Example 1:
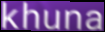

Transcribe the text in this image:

khuna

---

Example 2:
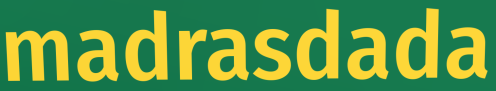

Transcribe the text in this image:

madrasdada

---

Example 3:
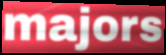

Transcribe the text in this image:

majors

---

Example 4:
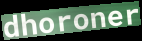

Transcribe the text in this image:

dhoroner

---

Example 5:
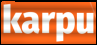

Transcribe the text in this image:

karpu